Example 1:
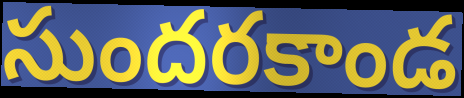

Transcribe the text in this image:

సుందరకాండ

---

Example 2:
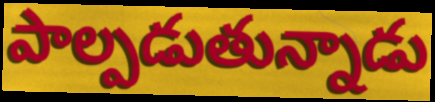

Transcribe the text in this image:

పాల్పడుతున్నాడు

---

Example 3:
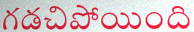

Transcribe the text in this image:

గడచిపోయింది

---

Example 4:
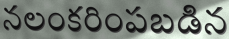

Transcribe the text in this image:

నలంకరింపబడిన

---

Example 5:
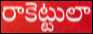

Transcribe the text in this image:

రాకెట్టులా